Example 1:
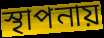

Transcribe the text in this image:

স্থাপনায়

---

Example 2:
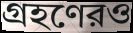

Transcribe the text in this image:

গ্রহণেরও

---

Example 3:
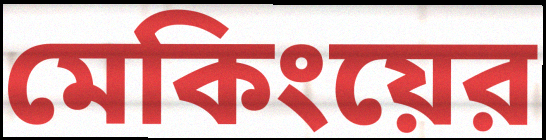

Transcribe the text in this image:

মেকিংয়ের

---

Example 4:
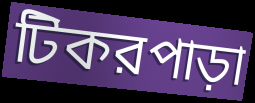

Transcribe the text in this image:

টিকরপাড়া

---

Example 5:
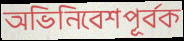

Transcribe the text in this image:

অভিনিবেশপূর্বক